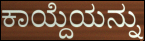
ಕಾಯ್ದೆಯನ್ನು